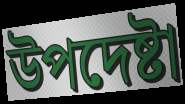
উপদেষ্টা